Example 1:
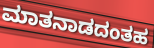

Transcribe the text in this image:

ಮಾತನಾಡದಂತಹ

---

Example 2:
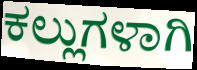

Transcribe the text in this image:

ಕಲ್ಲುಗಳಾಗಿ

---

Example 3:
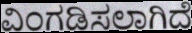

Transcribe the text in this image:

ವಿಂಗಡಿಸಲಾಗಿದೆ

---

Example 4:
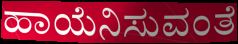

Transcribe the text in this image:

ಹಾಯೆನಿಸುವಂತೆ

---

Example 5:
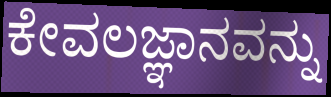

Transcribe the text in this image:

ಕೇವಲಜ್ಞಾನವನ್ನು